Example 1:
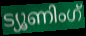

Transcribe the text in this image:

ട്യൂണിംഗ്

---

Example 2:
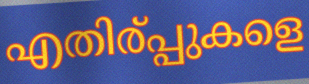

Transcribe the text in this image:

എതിര്പ്പുകളെ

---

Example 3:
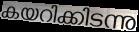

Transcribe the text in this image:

കയറിക്കിടന്നു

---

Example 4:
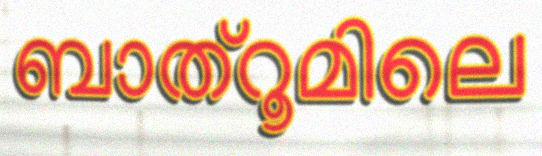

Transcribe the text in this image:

ബാത്റൂമിലെ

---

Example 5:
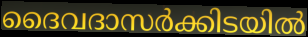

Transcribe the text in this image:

ദൈവദാസർക്കിടയിൽ